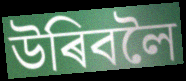
উৰিবলৈ